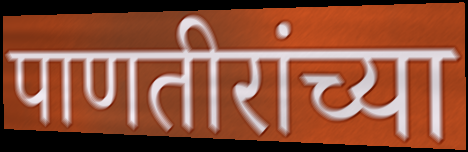
पाणतीरांच्या